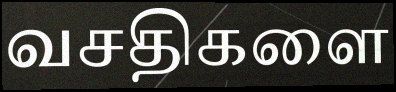
வசதிகளை